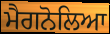
ਮੈਗਨੋਲਿਆ